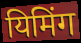
यिमिंग